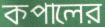
কপালের